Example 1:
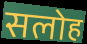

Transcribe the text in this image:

सलोह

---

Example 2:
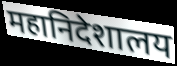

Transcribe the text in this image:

महानिदेशालय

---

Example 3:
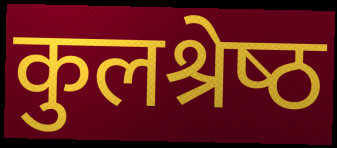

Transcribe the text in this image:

कुलश्रेष्‍ठ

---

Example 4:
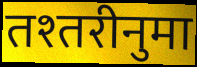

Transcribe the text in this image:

तश्तरीनुमा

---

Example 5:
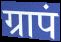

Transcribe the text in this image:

ग्रापं